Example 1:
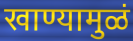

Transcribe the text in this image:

खाण्यामुळं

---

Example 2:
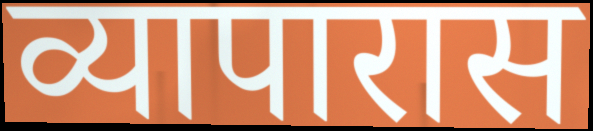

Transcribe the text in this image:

व्यापारास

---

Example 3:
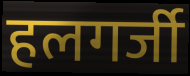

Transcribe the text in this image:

हलगर्जी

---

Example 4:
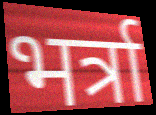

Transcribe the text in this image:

भर्त्रा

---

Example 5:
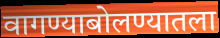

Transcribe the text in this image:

वागण्याबोलण्यातला